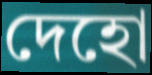
দেহো